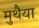
मुथैया